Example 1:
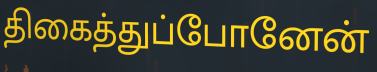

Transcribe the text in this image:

திகைத்துப்போனேன்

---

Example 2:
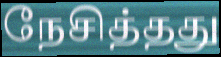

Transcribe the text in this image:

நேசித்தது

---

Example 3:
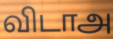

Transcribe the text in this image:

விடாஅ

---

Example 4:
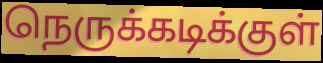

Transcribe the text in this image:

நெருக்கடிக்குள்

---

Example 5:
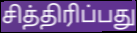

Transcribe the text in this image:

சித்திரிப்பது